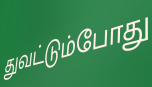
துவட்டும்போது